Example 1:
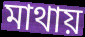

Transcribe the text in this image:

মাথায়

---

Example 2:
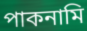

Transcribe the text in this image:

পাকনামি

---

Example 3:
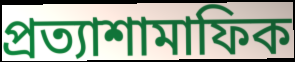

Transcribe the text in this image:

প্রত্যাশামাফিক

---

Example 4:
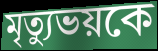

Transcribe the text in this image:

মৃত্যুভয়কে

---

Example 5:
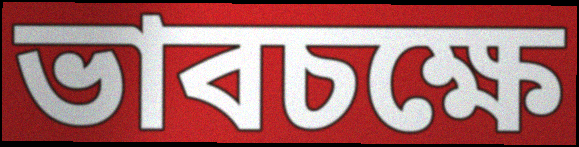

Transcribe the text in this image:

ভাবচক্ষে